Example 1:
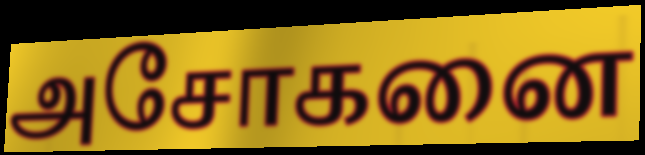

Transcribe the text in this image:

அசோகனை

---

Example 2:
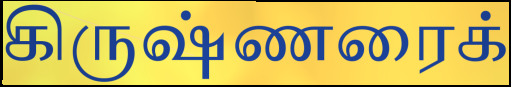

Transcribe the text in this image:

கிருஷ்ணரைக்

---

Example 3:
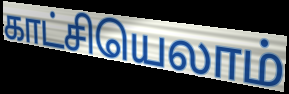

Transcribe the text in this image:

காட்சியெலாம்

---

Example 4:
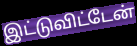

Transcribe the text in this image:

இட்டுவிட்டேன்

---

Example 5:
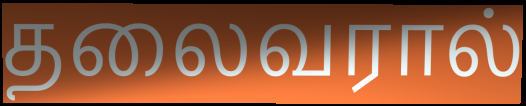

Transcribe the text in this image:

தலைவரால்